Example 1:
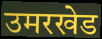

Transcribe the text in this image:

उमरखेड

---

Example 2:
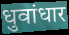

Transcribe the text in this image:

धुवांधार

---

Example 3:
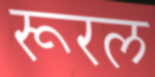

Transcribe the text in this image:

रूरल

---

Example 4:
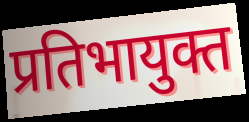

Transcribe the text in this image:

प्रतिभायुक्त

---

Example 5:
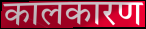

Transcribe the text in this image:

कालकारण